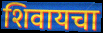
शिवायचा